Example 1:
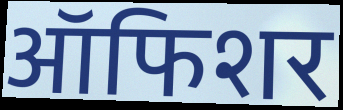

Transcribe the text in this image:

ऑफिशर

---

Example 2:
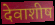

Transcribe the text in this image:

देवाशीष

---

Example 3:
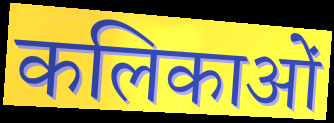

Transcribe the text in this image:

कलिकाओं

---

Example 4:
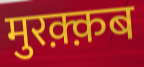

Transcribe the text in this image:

मुरक़्क़ब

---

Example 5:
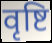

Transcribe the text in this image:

वृष्टि